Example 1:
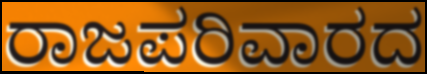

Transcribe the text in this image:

ರಾಜಪರಿವಾರದ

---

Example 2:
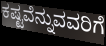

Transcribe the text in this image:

ಕಷ್ಟವೆನ್ನುವವರಿಗೆ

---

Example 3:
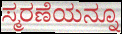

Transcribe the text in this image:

ಸ್ಮರಣೆಯನ್ನೂ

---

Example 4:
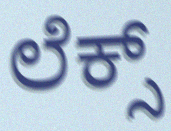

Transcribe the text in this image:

ಲೆಕ್ಸ್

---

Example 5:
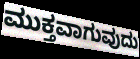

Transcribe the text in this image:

ಮುಕ್ತವಾಗುವುದು